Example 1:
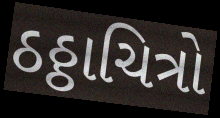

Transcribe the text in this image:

ઠઠ્ઠાચિત્રો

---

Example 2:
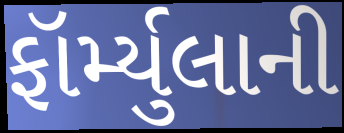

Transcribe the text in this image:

ફૉર્મ્યુલાની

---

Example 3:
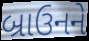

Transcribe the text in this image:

બ્રાઉનને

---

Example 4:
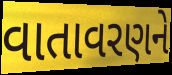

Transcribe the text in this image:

વાતાવરણને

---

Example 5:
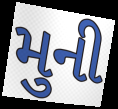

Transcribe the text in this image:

મુની